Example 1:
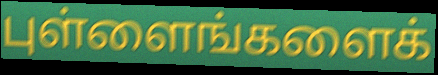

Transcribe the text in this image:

புள்ளைங்களைக்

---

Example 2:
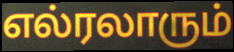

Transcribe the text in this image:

எல்ரலாரும்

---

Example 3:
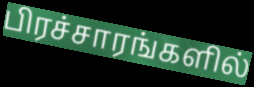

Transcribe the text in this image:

பிரச்சாரங்களில்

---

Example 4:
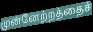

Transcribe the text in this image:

முன்னேற்றத்தைச்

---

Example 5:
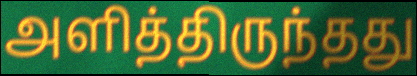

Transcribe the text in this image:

அளித்திருந்தது